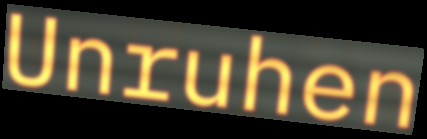
Unruhen